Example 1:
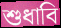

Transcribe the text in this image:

শুধাবি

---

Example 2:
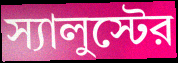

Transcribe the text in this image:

স্যালুস্টের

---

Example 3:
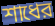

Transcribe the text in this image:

শাধের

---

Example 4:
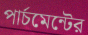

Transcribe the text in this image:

পার্চমেন্টের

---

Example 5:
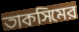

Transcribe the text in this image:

তাকসিমের